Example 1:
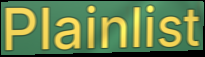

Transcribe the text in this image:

Plainlist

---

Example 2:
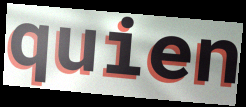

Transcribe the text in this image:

quien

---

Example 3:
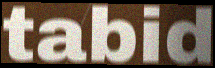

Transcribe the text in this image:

tabid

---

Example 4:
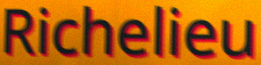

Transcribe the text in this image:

Richelieu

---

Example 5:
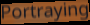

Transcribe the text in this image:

Portraying